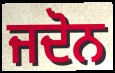
ਜਦੋਨ